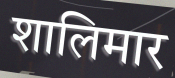
शालिमार